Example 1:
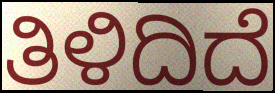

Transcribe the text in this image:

ತಿಳಿದಿದೆ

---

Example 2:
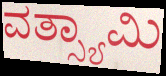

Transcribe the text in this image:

ವತ್ಸ್ಯಾಮಿ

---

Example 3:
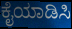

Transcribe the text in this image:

ಕೈಯಾಡಿಸಿ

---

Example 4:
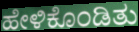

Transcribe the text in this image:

ಹೇಳಿಕೊಂಡಿತು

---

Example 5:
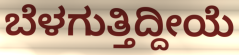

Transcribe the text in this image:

ಬೆಳಗುತ್ತಿದ್ದೀಯೆ